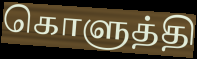
கொளுத்தி